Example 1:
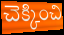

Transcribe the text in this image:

చెక్కించి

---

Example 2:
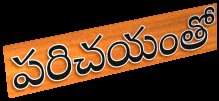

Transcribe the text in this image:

పరిచయంతో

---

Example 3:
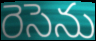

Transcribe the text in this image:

రెసెను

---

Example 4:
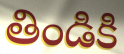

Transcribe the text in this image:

తిండికి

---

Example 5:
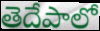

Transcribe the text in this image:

తెదేపాలో